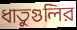
ধাতুগুলির